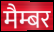
मैम्बर